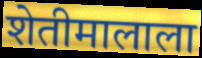
शेतीमालाला